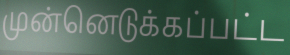
முன்னெடுக்கப்பட்ட